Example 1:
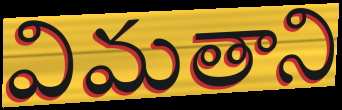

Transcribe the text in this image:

విమతాని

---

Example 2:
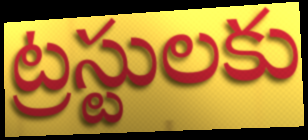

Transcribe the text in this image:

ట్రస్టులకు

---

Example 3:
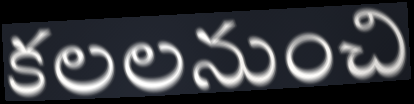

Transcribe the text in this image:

కలలనుంచి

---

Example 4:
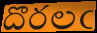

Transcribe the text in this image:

దొరలఁ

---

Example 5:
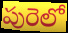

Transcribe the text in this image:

పురెలో